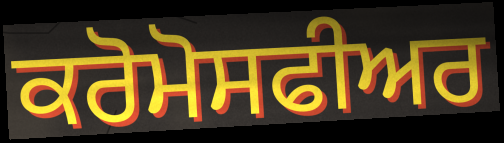
ਕਰੋਮੋਸਫੀਅਰ